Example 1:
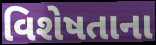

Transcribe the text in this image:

વિશેષતાના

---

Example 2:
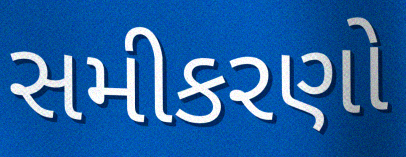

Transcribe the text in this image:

સમીકરણો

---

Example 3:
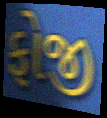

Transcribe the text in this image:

ફોજી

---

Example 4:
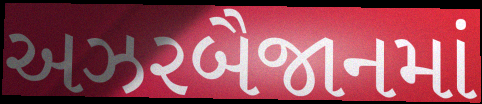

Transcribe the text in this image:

અઝરબૈજાનમાં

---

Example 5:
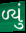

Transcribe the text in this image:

ળ્યું